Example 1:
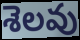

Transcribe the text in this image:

శెలవు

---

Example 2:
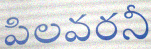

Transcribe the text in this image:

పిలవరనీ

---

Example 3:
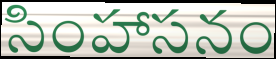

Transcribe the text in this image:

సింహాసనం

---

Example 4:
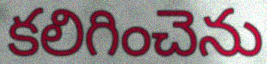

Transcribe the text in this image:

కలిగించెను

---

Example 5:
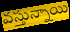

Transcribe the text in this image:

వస్తున్నాయి